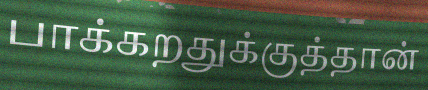
பாக்கறதுக்குத்தான்